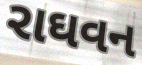
રાઘવન